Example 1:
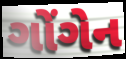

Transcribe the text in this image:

ગોંગેન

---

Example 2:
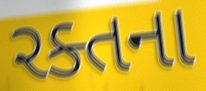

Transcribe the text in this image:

રક્તના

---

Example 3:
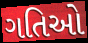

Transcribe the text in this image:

ગતિઓ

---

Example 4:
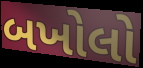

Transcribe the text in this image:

બખોલો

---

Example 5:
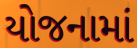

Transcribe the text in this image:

યોજનામાં